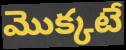
మొక్కటే